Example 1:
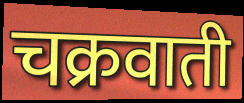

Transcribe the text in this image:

चक्रवाती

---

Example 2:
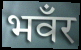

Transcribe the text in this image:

भवँर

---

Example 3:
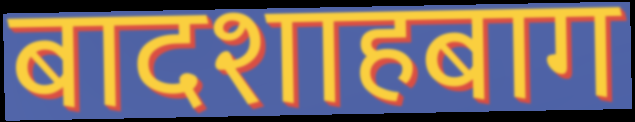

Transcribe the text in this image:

बादशाहबाग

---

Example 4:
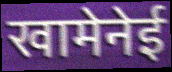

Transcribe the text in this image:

खामेनेई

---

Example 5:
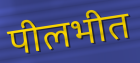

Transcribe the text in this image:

पीलभीत